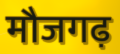
मौजगढ़